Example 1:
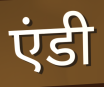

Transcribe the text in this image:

एंडी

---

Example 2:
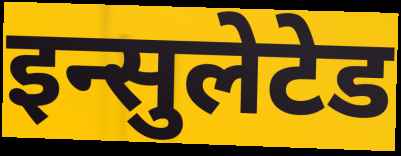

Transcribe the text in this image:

इन्सुलेटेड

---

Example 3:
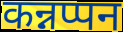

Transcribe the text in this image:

कन्नप्पन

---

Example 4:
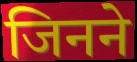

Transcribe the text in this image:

जिनने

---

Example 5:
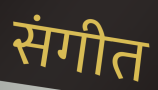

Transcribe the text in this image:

संगीत